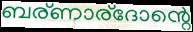
ബര്ണാര്ദോന്റെ